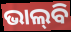
ଭାଲ୍‌ବି